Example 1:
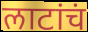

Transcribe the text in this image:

लाटांचं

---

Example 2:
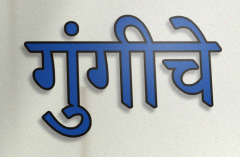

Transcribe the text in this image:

गुंगीचे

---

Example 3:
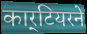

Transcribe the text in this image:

कार्टियरने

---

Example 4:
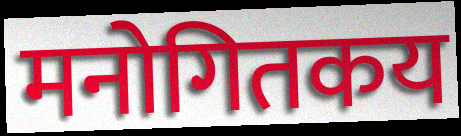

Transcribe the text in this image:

मनोगितकय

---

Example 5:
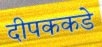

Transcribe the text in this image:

दीपककडे